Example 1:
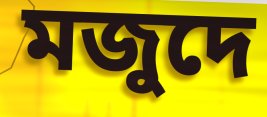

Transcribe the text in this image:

মজুদে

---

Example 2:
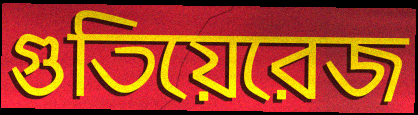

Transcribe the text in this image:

গুতিয়েরেজ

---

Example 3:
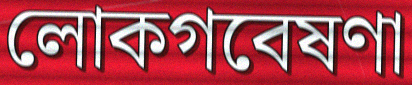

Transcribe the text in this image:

লোকগবেষণা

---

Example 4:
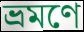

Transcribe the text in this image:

ভ্রমণে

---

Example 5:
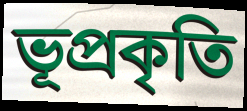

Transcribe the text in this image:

ভূপ্রকৃতি